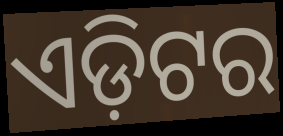
ଏଡ଼ିଟର